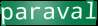
paraval